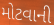
મોટવાની